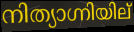
നിത്യാഗ്നിയില്